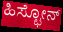
ಹಿಸ್ಟೋನ್